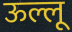
ऊल्लू